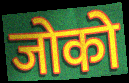
जोको